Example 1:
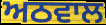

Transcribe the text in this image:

ਅਠਵਾਲ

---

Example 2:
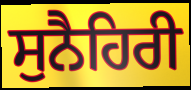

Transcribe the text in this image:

ਸੁਨੈਹਿਰੀ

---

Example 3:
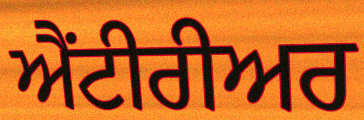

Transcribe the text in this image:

ਐਂਟੀਰੀਅਰ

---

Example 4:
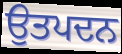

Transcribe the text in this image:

ਉਤਪਦਨ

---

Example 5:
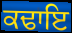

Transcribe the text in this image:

ਕਢਾਇ